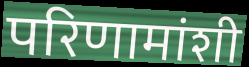
परिणामांशी